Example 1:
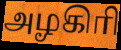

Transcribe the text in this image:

அழகிரி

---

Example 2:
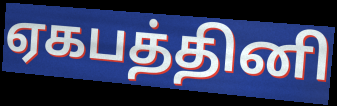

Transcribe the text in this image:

ஏகபத்தினி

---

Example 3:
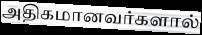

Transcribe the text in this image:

அதிகமானவர்களால்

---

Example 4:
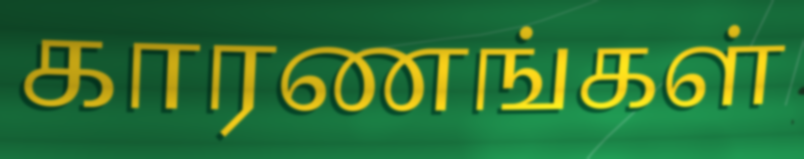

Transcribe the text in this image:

காரணங்கள்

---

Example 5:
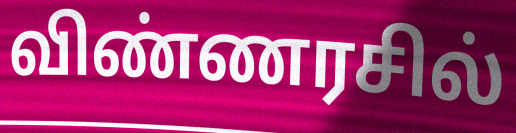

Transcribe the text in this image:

விண்ணரசில்